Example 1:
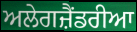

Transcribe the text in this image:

ਅਲੇਗਜ਼ੈਂਡਰੀਆ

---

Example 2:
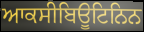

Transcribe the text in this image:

ਆਕਸੀਬਿਊਟਿਨਿਨ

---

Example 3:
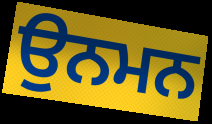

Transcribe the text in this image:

ਉਨਮਨ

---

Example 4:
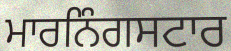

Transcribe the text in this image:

ਮਾਰਨਿੰਗਸਟਾਰ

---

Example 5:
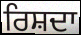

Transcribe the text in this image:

ਰਿਸ਼ਦਾ